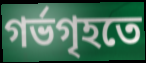
গর্ভগৃহতে